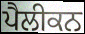
ਪੈਲੀਕਨ